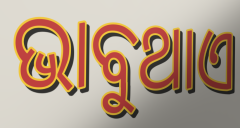
ଭାବୁଥାଏ